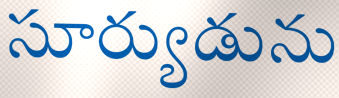
సూర్యుడును